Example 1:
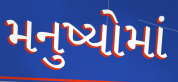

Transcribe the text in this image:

મનુષ્યોમાં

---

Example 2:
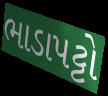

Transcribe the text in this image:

ભાડાપટ્ટો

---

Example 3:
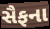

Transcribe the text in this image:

સૈફના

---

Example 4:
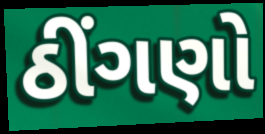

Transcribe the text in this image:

ઠીંગણો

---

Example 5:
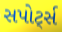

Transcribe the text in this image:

સપોર્ટ્સ